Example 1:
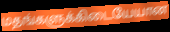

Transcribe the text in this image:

மதங்களுக்கிடையேயான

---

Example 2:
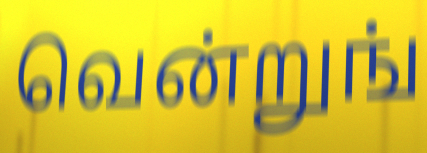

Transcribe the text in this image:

வென்றுங்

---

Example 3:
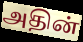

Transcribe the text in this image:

அதின்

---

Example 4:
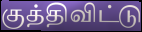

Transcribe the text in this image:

குத்திவிட்டு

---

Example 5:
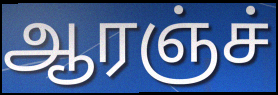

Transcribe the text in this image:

ஆரஞ்ச்